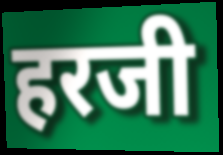
हरजी